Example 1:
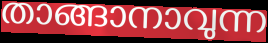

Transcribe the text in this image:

താങ്ങാനാവുന്ന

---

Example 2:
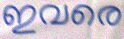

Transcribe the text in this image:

ഇവരെ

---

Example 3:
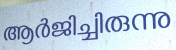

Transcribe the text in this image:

ആർജിച്ചിരുന്നു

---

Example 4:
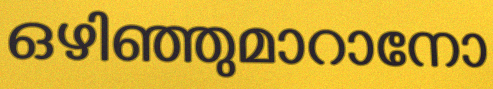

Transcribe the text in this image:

ഒഴിഞ്ഞുമാറാനോ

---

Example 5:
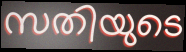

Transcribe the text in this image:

സതിയുടെ